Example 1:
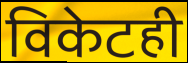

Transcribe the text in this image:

विकेटही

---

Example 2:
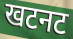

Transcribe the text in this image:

खटनट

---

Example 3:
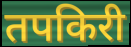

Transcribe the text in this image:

तपकिरी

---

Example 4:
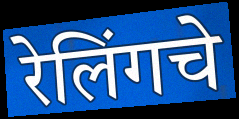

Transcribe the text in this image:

रेलिंगचे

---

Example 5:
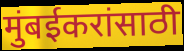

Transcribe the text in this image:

मुंबईकरांसाठी